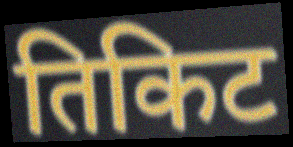
तिकिट